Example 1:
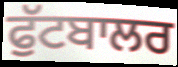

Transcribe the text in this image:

ਫੁੱਟਬਾਲਰ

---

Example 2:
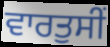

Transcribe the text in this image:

ਵਾਰਤੁਸੀਂ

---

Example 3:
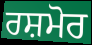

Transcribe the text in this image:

ਰਸ਼ਮੋਰ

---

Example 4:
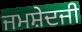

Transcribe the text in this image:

ਜਮਸ਼ੇਦਜੀ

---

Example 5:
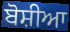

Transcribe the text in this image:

ਬੋਸ਼ੀਆ